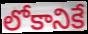
లోకానికే